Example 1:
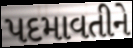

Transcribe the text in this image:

પદમાવતીને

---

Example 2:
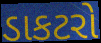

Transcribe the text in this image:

ડાકટરો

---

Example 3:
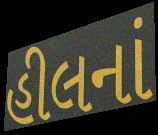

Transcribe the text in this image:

હીલનાં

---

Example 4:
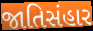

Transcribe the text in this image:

જાતિસંહાર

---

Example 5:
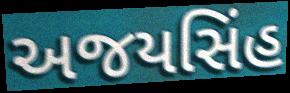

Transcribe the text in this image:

અજયસિંહ